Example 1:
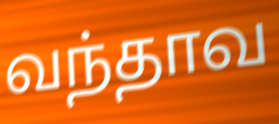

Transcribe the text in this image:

வந்தாவ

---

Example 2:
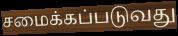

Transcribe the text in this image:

சமைக்கப்படுவது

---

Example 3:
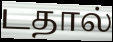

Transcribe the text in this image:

டதால்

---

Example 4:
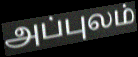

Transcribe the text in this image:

அப்புலம்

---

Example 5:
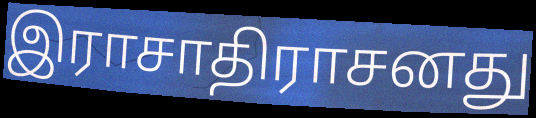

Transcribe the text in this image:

இராசாதிராசனது